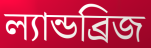
ল্যান্ডব্রিজ